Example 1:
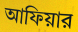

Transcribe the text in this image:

আফিয়ার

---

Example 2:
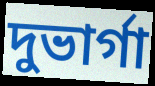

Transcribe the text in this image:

দুভার্গা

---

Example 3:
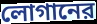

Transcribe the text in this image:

লোগানের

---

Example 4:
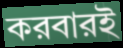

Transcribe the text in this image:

করবারই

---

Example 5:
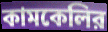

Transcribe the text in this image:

কামকেলির